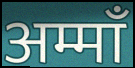
अम्माँ